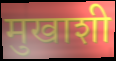
मुखाशी